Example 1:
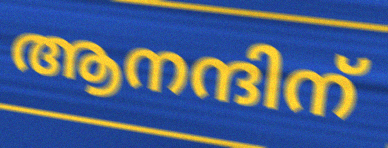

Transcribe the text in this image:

ആനന്ദിന്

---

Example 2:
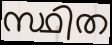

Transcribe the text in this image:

സ്ഥിത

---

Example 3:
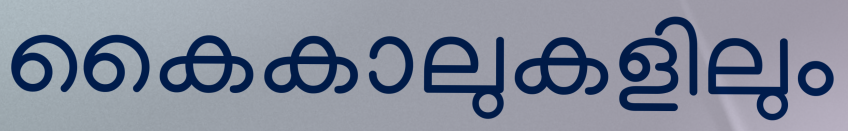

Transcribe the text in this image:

കൈകാലുകളിലും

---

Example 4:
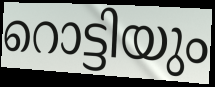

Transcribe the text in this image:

റൊട്ടിയും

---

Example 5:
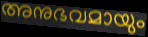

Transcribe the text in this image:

അനുഭവമായും